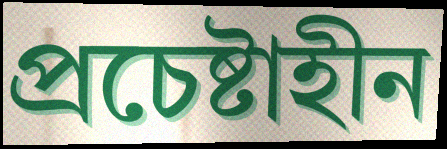
প্রচেষ্টাহীন